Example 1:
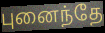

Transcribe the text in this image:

புனைந்தே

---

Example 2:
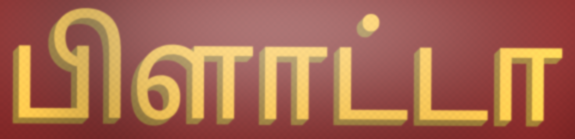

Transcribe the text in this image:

பிளாட்டா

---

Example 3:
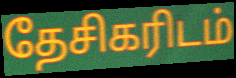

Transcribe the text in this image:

தேசிகரிடம்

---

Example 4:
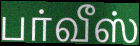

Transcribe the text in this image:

பர்வீஸ்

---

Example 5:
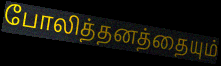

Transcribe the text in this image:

போலித்தனத்தையும்